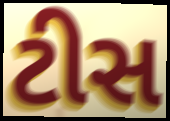
ટીસ